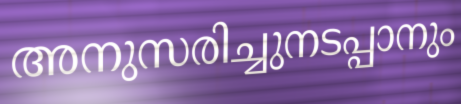
അനുസരിച്ചുനടപ്പാനും